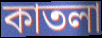
কাতলা